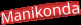
Manikonda